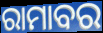
ରାମାବର